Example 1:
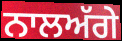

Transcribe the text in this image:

ਨਾਲਅੱਗੇ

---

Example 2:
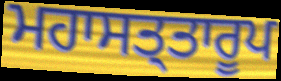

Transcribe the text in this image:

ਮਹਾਸਤ੍ਤਾਰੂਪ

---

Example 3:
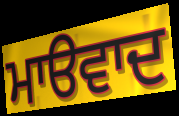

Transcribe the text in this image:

ਮਾੳਵਾਦ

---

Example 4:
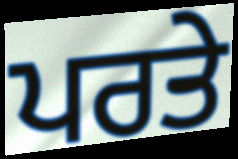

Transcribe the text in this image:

ਪਰਤੇ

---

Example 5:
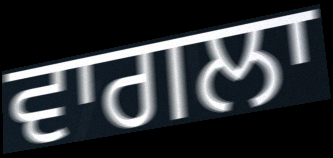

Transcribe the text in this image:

ਵਾਗਲਾ